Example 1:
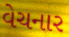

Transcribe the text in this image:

વેચનાર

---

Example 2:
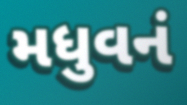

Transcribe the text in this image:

મધુવનં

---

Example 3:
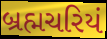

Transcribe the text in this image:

બ્રહ્મચરિયં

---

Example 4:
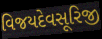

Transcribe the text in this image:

વિજયદેવસૂરિજી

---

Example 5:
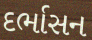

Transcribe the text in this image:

દર્ભાસન